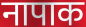
नापाक